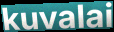
kuvalai